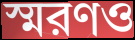
স্মরণও